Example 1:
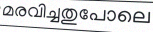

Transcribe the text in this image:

മരവിച്ചതുപോലെ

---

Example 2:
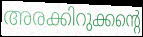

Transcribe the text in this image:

അരക്കിറുക്കന്റെ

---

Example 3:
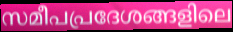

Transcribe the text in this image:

സമീപപ്രദേശങ്ങളിലെ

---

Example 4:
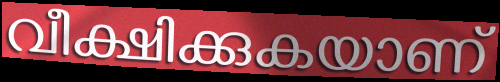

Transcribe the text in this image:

വീക്ഷിക്കുകയാണ്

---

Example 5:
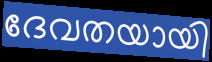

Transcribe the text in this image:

ദേവതയായി